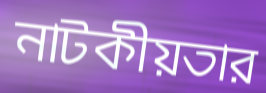
নাটকীয়তার